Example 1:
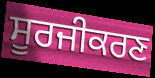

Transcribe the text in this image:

ਸੂਰਜੀਕਰਣ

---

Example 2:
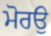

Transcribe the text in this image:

ਮੋਰਉ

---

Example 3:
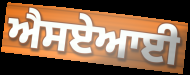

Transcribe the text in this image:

ਐਸਏਆਈ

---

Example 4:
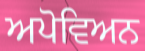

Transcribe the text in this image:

ਅਪੋਵਿਅਨ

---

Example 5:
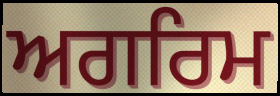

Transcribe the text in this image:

ਅਗਰਿਮ